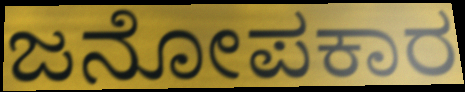
ಜನೋಪಕಾರ